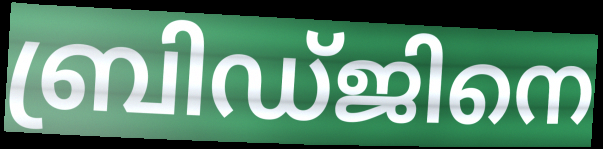
ബ്രിഡ്ജിനെ